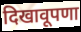
दिखावूपणा